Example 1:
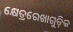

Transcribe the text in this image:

କ୍ଷେତ୍ରରେଖାଗୁଡ଼ିକ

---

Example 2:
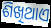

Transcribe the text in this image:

ଶିଖିଥାଏ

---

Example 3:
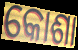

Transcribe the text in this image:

କୋଶା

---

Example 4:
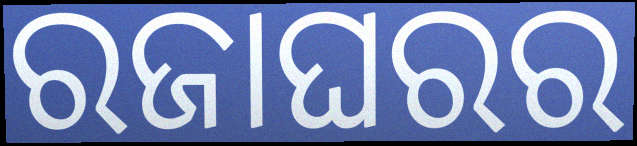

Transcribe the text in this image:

ରଜାଘରର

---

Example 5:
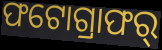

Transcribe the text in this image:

ଫଟୋଗ୍ରାଫର୍